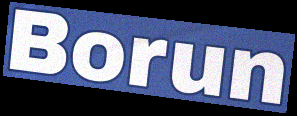
Borun